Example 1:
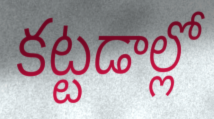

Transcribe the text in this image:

కట్టడాల్లో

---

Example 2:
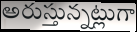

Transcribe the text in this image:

అరుస్తున్నట్లుగా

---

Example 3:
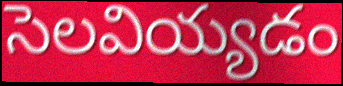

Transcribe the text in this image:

సెలవియ్యడం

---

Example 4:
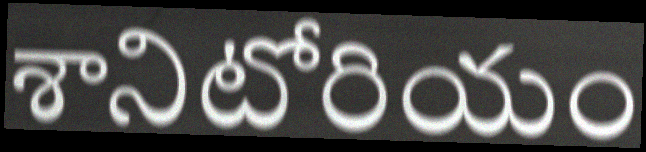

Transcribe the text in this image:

శానిటోరియం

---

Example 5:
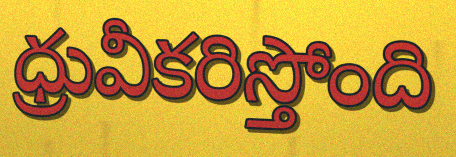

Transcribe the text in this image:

ధ్రువీకరిస్తోంది